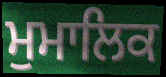
ਮੁਮਾਲਿਕ